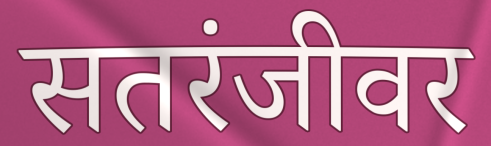
सतरंजीवर